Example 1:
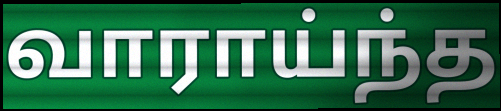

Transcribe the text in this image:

வாராய்ந்த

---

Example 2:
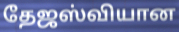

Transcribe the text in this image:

தேஜஸ்வியான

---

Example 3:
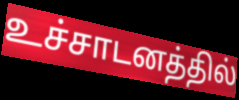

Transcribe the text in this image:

உச்சாடனத்தில்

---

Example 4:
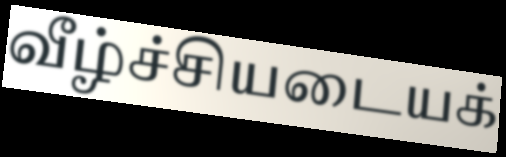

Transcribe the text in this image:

வீழ்ச்சியடையக்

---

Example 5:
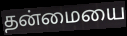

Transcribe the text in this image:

தன்மையை